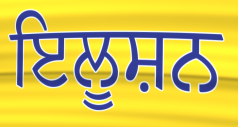
ਇਲੂਸ਼ਨ